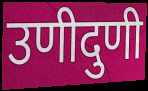
उणीदुणी